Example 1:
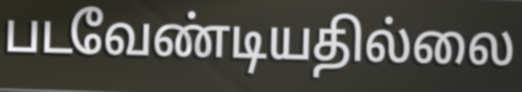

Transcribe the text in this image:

படவேண்டியதில்லை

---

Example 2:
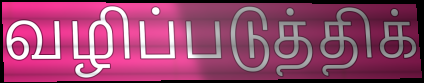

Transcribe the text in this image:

வழிப்படுத்திக்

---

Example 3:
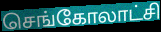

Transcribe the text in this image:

செங்கோலாட்சி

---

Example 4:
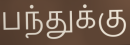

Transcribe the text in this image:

பந்துக்கு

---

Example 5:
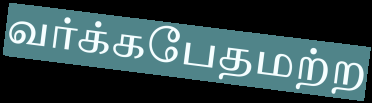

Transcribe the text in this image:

வர்க்கபேதமற்ற